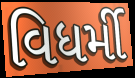
વિધર્મી